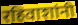
रहिवाशांनी